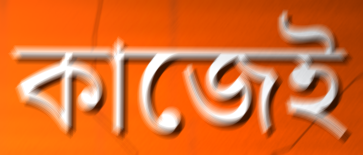
কাজেই